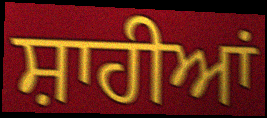
ਸ਼ਾਹੀਆਂ